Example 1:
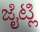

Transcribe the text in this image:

ಜೈಟ್ಲಿ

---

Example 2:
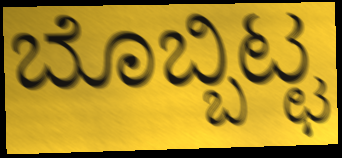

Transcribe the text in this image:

ಬೊಬ್ಬಿಟ್ಟ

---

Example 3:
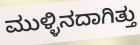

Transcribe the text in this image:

ಮುಳ್ಳಿನದಾಗಿತ್ತು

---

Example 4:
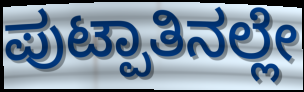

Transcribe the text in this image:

ಪುಟ್ಪಾತಿನಲ್ಲೇ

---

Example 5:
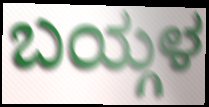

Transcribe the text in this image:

ಬಯ್ಗಳ